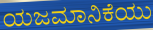
ಯಜಮಾನಿಕೆಯು